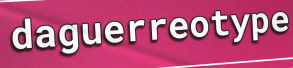
daguerreotype